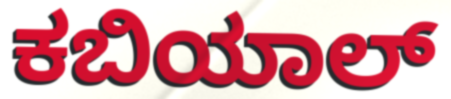
ಕಬಿಯಾಲ್